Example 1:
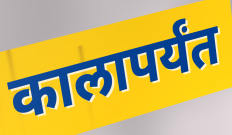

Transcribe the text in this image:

कालापर्यंत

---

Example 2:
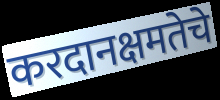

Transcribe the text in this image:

करदानक्षमतेचे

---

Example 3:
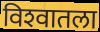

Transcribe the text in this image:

विश्‍वातला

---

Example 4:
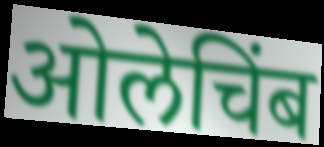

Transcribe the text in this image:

ओलेचिंब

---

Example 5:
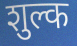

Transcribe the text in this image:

शुल्क